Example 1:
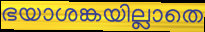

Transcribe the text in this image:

ഭയാശങ്കയില്ലാതെ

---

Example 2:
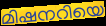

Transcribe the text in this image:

മിഷനറിയെ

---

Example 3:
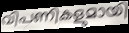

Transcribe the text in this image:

വിപണികളുമായി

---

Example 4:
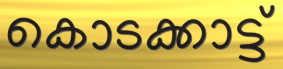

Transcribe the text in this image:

കൊടക്കാട്ട്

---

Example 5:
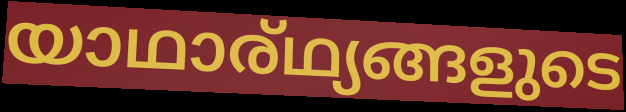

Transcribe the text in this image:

യാഥാര്ഥ്യങ്ങളുടെ